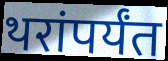
थरांपर्यंत